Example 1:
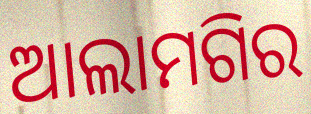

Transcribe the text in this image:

ଆଲାମଗିର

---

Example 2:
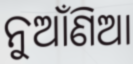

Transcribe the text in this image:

ନୁଆଁଣିଆ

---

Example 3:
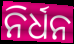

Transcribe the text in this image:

ନିର୍ଧନ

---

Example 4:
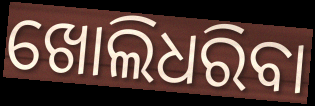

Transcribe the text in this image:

ଖୋଲିଧରିବା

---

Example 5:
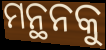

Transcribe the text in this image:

ମନ୍ଥନକୁ